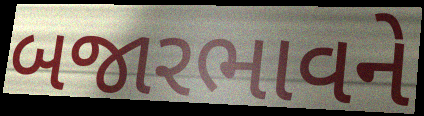
બજારભાવને